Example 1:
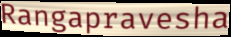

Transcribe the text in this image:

Rangapravesha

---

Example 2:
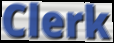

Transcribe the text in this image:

Clerk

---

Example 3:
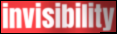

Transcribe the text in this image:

invisibility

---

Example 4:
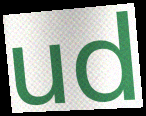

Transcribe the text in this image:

ud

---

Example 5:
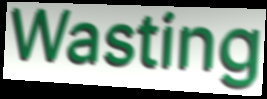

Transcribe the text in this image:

Wasting